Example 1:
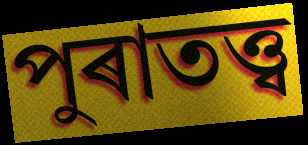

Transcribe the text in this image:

পুৰাতত্ত্ব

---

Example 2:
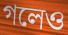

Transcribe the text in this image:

গলেও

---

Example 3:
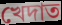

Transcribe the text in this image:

খেদাত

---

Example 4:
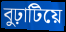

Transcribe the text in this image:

বুঢ়াটিয়ে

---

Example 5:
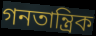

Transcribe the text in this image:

গনতান্ত্ৰিক